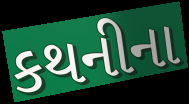
કથનીના